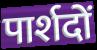
पार्शदों